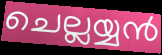
ചെല്ലയ്യൻ